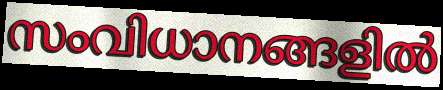
സംവിധാനങ്ങളിൽ